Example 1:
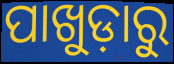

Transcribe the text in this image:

ପାଖୁଡ଼ାରୁ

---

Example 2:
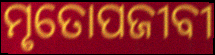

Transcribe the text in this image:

ମୃତୋପଜୀବୀ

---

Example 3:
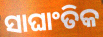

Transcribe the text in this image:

ସାଘାଂତିକ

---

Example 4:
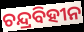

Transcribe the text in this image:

ଚନ୍ଦ୍ରବିହୀନ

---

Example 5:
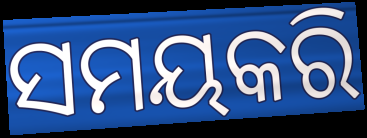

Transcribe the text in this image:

ସମୟକରି